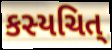
કસ્યચિત્